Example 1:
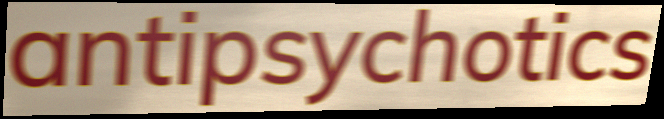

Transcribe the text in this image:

antipsychotics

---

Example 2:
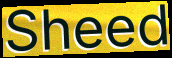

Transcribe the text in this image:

Sheed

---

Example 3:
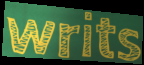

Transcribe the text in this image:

writs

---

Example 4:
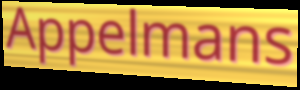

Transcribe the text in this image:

Appelmans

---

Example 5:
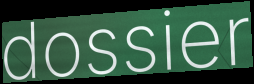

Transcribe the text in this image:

dossier